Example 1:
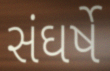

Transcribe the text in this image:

સંઘર્ષે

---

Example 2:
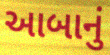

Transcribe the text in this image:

આબાનું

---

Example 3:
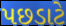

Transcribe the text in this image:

પછડાટે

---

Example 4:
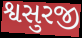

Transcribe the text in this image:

શ્વસુરજી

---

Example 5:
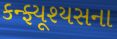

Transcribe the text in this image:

કન્ફ્યૂશ્યસના